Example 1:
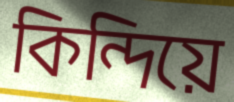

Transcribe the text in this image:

কিন্দিয়ে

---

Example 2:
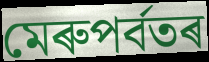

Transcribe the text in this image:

মেৰুপৰ্বতৰ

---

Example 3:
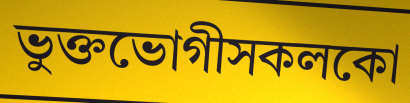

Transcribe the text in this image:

ভুক্তভোগীসকলকো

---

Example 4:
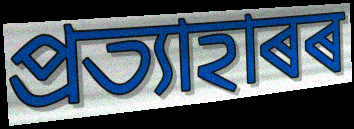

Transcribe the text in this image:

প্ৰত্যাহাৰৰ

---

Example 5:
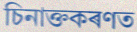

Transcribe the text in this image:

চিনাক্তকৰণত